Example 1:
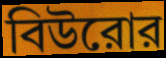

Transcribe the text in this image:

বিউরোর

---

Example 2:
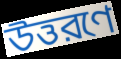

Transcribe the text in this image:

উত্তরণে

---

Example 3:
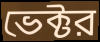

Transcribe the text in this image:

ভেক্টর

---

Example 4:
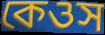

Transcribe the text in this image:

কেওস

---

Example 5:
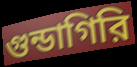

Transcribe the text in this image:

গুন্ডাগিরি